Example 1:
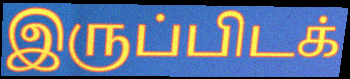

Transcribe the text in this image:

இருப்பிடக்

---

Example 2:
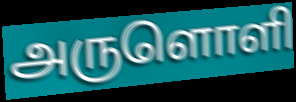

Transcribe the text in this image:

அருளொளி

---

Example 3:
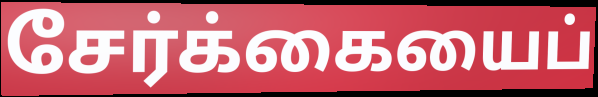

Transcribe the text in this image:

சேர்க்கையைப்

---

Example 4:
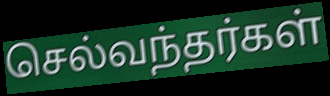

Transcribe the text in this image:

செல்வந்தர்கள்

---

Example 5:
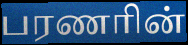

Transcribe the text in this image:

பரணரின்